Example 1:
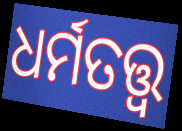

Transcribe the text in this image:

ଧର୍ମତତ୍ତ୍ଵ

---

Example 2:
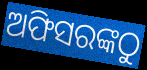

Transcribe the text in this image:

ଅଫିସରଙ୍କଠୁ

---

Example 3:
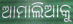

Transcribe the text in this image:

ଆମାଲିଆକୁ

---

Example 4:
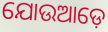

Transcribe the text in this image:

ଯୋଉଆଡ଼େ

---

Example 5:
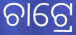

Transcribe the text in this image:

ଚାଟ୍ରେ